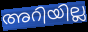
അറിയില്ല